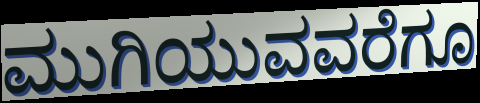
ಮುಗಿಯುವವರೆಗೂ